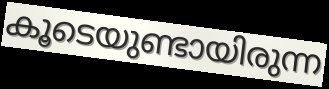
കൂടെയുണ്ടായിരുന്ന